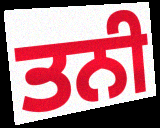
ਤਨੀ